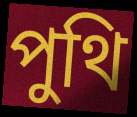
পুথি